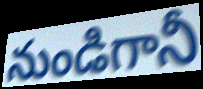
నుండిగానీ